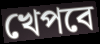
খেপবে